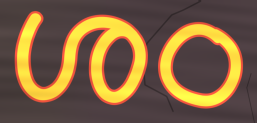
ശഠ